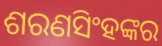
ଶରଣସିଂହଙ୍କର